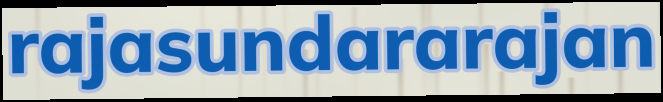
rajasundararajan